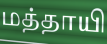
மத்தாயி